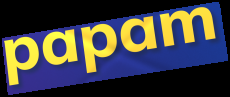
papam